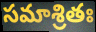
సమాశ్రితః